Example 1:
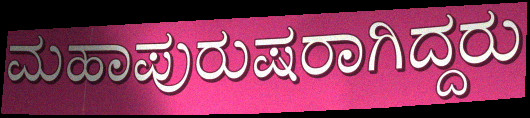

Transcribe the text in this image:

ಮಹಾಪುರುಷರಾಗಿದ್ದರು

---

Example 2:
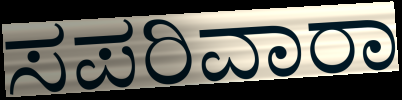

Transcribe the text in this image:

ಸಪರಿವಾರಾ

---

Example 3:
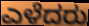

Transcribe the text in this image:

ಎಳೆದರು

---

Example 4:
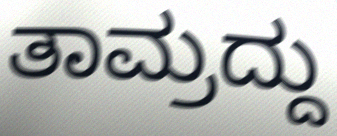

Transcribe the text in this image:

ತಾಮ್ರದ್ದು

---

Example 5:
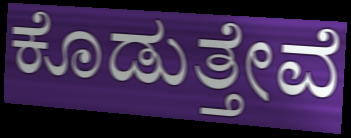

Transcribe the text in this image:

ಕೊಡುತ್ತೇವೆ